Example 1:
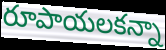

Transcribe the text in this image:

రూపాయలకన్నా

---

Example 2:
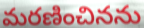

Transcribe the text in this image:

మరణించినను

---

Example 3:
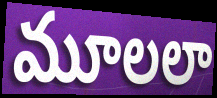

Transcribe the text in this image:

మూలలా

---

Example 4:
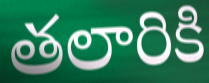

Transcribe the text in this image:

తలారికి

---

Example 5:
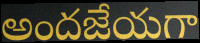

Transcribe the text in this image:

అందజేయగా